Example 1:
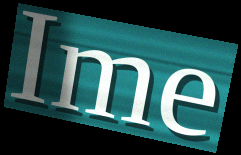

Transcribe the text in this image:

Ime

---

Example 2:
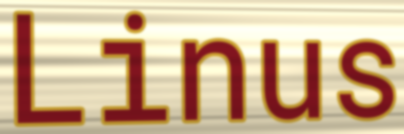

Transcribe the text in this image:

Linus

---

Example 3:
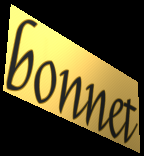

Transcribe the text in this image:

bonnet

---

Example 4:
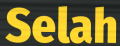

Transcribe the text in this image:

Selah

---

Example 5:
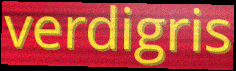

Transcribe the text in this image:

verdigris